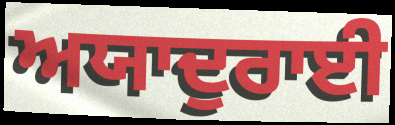
ਅਯਾਦੁਰਾਈ